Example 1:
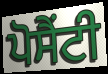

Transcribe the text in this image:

ਪੋਸੈਂਟੀ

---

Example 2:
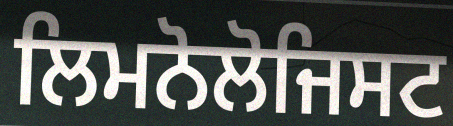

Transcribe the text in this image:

ਲਿਮਨੋਲੋਜਿਸਟ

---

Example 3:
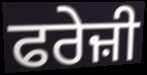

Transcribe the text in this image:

ਫਰੇਜ਼ੀ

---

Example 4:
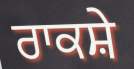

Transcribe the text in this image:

ਰਾਕਸ਼ੇ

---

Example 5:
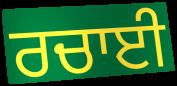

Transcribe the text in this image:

ਰਚਾਈ